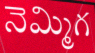
నెమ్మిగ